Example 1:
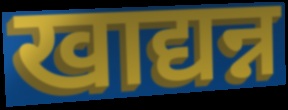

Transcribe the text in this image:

खाद्यन्न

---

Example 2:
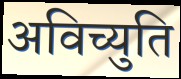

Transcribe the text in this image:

अविच्युति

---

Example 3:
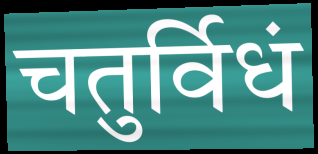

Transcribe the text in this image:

चतुर्विधं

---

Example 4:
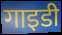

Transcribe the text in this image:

गाइडी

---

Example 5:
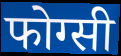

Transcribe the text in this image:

फोग्सी